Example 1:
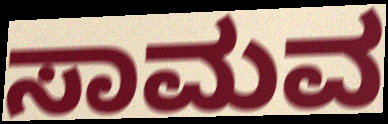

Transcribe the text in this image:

ಸಾಮವ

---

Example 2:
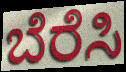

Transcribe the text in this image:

ಬೆರೆಸಿ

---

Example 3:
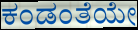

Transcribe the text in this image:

ಕಂಡಂತೆಯೇ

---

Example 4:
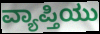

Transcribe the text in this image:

ವ್ಯಾಪ್ತಿಯು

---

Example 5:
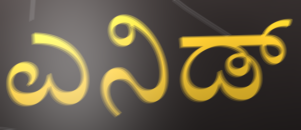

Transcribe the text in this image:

ಎನಿಡ್